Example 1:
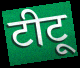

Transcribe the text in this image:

टीटू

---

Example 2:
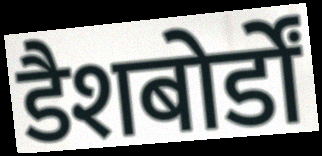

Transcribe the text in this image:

डैशबोर्डों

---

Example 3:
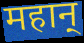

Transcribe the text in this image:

महान्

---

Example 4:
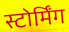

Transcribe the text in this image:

स्टोर्मिंग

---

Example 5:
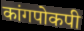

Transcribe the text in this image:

कांगपोकपी